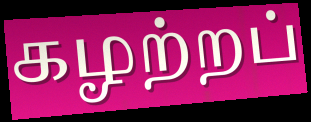
கழற்றப்